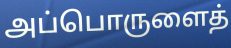
அப்பொருளைத்